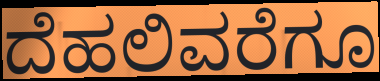
ದೆಹಲಿವರೆಗೂ